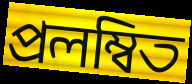
প্রলম্বিত